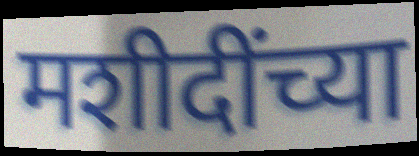
मशीदींच्या